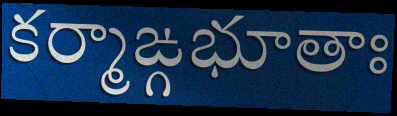
కర్మాఙ్గభూతాః